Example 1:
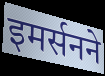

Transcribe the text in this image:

इमर्सनने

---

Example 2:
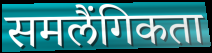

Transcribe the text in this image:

समलैंगिकता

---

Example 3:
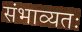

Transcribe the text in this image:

संभाव्यतः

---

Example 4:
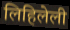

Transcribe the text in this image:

लिहिलेली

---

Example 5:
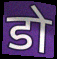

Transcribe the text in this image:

डो